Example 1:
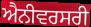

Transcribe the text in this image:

ਐਨੀਵਰਸਰੀ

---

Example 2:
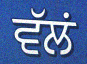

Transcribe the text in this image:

ਵੱਲਂ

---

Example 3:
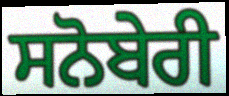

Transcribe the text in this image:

ਸਨੋਬੇਰੀ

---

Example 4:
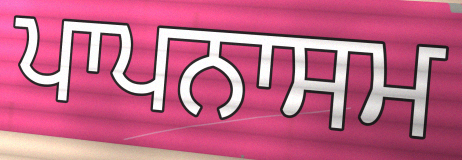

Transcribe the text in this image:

ਪਾਪਨਾਸਮ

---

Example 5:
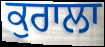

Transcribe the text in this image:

ਕੁਰਾਲਾ